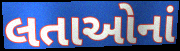
લતાઓનાં